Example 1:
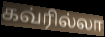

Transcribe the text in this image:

கவ்ரில்லா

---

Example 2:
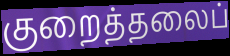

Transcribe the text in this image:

குறைத்தலைப்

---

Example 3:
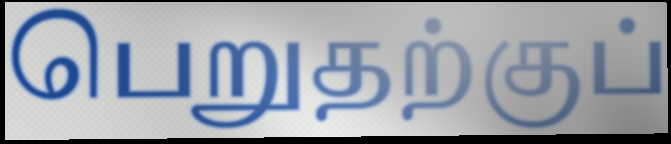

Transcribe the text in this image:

பெறுதற்குப்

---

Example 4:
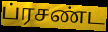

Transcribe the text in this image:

ப்ரசண்ட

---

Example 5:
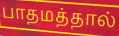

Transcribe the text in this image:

பாதமத்தால்